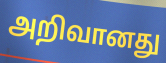
அறிவானது